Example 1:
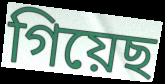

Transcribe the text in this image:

গিয়েছ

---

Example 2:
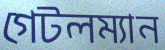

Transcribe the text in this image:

গেটলম্যান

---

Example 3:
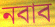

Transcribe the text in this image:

নবাব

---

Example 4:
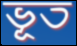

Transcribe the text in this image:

ভূত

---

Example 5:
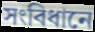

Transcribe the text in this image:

সংবিধানে